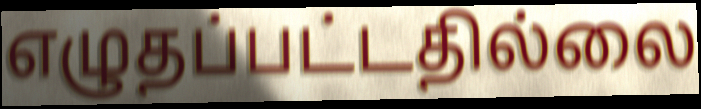
எழுதப்பட்டதில்லை